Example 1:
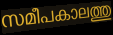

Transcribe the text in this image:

സമീപകാലത്തു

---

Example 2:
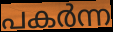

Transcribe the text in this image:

പകർന്ന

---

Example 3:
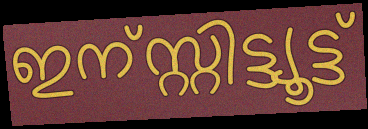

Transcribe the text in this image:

ഇന്സ്റ്റിട്ട്യൂട്ട്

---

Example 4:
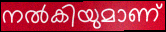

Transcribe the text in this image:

നൽകിയുമാണ്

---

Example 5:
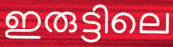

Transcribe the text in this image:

ഇരുട്ടിലെ